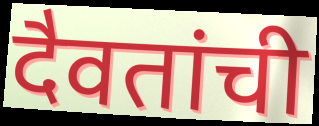
दैवतांची